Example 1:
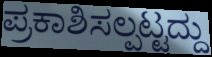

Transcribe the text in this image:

ಪ್ರಕಾಶಿಸಲ್ಪಟ್ಟದ್ದು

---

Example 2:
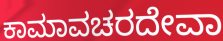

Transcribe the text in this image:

ಕಾಮಾವಚರದೇವಾ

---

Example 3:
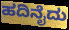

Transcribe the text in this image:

ಹದಿನೈದು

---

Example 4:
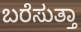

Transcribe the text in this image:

ಬರೆಸುತ್ತಾ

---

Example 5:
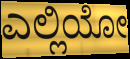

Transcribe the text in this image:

ಎಲ್ಲಿಯೋ